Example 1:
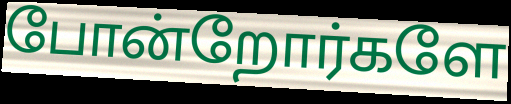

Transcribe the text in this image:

போன்றோர்களே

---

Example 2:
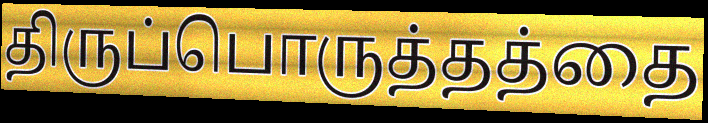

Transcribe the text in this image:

திருப்பொருத்தத்தை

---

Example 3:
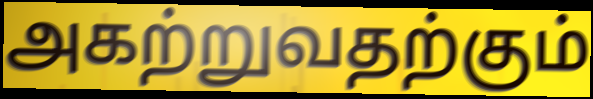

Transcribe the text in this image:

அகற்றுவதற்கும்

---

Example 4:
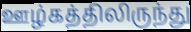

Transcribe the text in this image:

ஊழ்கத்திலிருந்து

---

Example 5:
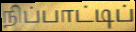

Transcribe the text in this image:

நிப்பாட்டிப்